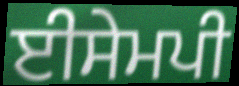
ਈਸੇਮਪੀ